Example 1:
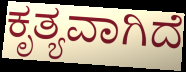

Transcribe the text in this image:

ಕೃತ್ಯವಾಗಿದೆ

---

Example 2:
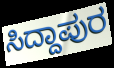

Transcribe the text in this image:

ಸಿದ್ದಾಪುರ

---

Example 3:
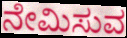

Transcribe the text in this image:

ನೇಮಿಸುವ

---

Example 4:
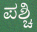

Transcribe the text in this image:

ಪಶ್ಚಿ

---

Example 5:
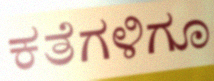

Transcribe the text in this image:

ಕತೆಗಳಿಗೂ